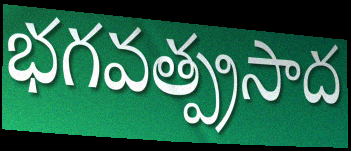
భగవత్ప్రసాద